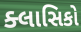
ક્લાસિકો